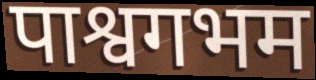
पाश्वगभम